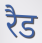
रैड